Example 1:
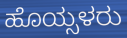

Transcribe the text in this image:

ಹೊಯ್ಸಳರು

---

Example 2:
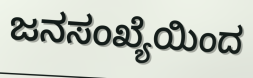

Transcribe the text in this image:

ಜನಸಂಖ್ಯೆಯಿಂದ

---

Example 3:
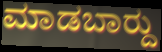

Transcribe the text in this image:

ಮಾಡಬಾರ್‍ದು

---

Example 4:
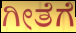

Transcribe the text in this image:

ಗೀತೆಗೆ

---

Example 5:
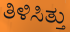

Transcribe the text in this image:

ತಿಳಿಸಿತ್ತು